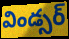
విండ్సర్